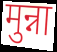
मुन्ना